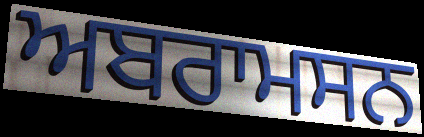
ਅਬਰਾਮਸਨ